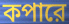
কপারে